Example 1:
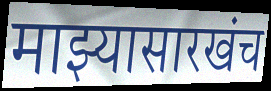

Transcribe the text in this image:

माझ्यासारखंच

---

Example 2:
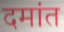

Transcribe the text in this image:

दमांत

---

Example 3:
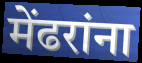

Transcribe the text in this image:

मेंढरांना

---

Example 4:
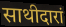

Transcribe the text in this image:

साथीदारां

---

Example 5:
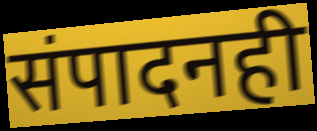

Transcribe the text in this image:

संपादनही